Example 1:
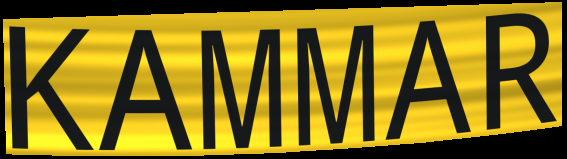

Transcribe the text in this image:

KAMMAR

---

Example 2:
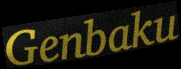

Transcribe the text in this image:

Genbaku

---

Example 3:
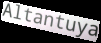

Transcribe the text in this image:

Altantuya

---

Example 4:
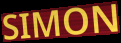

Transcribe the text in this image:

SIMON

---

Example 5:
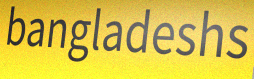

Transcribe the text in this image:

bangladeshs